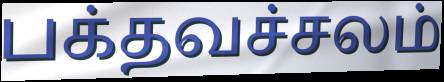
பக்தவச்சலம்